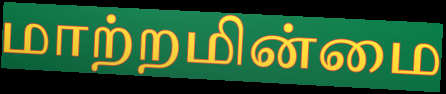
மாற்றமின்மை